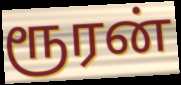
ரூரன்